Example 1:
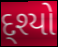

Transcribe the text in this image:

દ્શ્યો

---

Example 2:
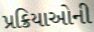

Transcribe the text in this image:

પ્રક્રિયાઓની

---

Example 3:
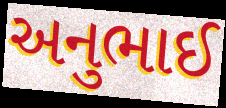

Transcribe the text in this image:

અનુભાઈ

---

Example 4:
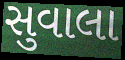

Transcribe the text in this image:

સુવાલા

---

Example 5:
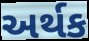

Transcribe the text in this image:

અર્થક